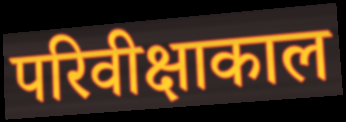
परिवीक्षाकाल